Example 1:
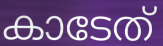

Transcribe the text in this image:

കാടേത്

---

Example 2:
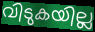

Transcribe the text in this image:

വിടുകയില്ല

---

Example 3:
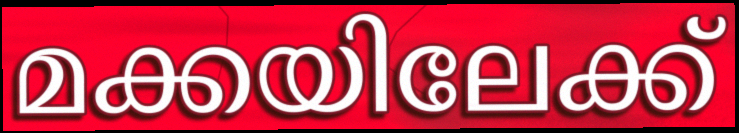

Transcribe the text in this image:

മക്കയിലേക്ക്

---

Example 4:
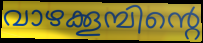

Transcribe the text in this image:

വാഴക്കൂമ്പിന്റെ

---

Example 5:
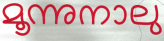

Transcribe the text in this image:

മൂന്നുനാലു